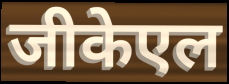
जीकेएल